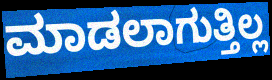
ಮಾಡಲಾಗುತ್ತಿಲ್ಲ